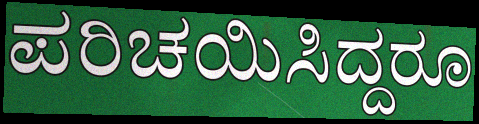
ಪರಿಚಯಿಸಿದ್ದರೂ